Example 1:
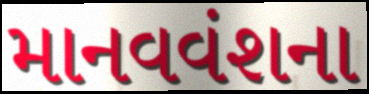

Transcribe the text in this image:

માનવવંશના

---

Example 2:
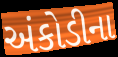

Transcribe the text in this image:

અંકોડીના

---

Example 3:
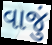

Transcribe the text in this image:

વાજું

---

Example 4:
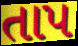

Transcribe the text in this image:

તાપ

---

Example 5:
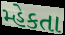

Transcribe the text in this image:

મ્હેકતા